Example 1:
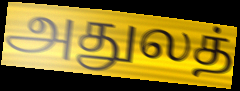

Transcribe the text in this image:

அதுலத்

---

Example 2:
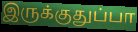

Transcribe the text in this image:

இருக்குதுப்பா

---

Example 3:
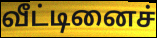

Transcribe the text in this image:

வீட்டினைச்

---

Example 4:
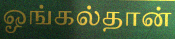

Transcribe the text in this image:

ஓங்கல்தான்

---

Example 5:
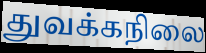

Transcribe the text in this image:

துவக்கநிலை